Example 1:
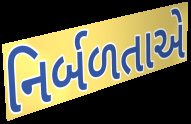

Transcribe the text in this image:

નિર્બળતાએ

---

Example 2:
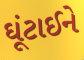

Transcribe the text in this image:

ઘૂંટાઈને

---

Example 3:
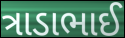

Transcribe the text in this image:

ત્રાડાભાઈ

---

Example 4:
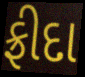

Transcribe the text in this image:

ફ્રીદા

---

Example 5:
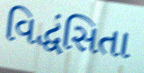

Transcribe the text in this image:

વિદ્ધંસિતા